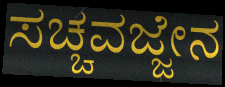
ಸಚ್ಚವಜ್ಜೇನ